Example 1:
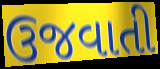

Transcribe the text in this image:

ઉજવાતી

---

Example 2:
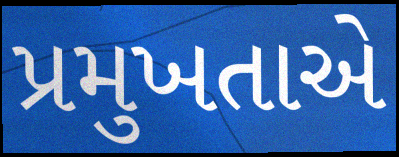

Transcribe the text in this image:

પ્રમુખતાએ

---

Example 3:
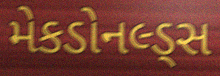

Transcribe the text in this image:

મેકડોનલ્ડ્સ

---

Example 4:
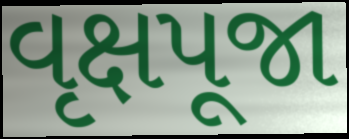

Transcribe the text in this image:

વૃક્ષપૂજા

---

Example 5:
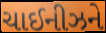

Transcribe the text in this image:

ચાઈનીઝને